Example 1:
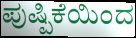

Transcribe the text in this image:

ಪುಷ್ಪಿಕೆಯಿಂದ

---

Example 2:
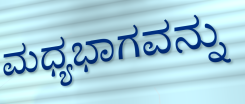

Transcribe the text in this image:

ಮಧ್ಯಭಾಗವನ್ನು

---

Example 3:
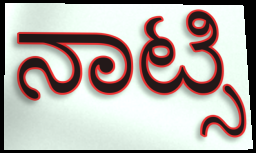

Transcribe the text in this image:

ನಾಟ್ಸಿ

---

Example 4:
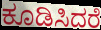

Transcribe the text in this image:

ಕೂಡಿಸಿದರೆ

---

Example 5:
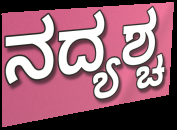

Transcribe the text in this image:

ನದ್ಯಶ್ಚ